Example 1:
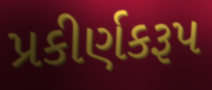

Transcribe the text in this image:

પ્રકીર્ણકરૂપ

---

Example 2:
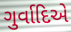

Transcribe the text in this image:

ગુર્વાદિએ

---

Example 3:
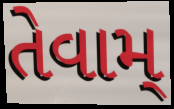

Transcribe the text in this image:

તેવામ્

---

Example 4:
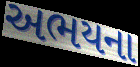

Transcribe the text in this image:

અભયના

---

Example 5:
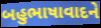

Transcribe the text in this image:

બહુભાષાવાદને